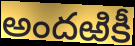
అందఱికీ